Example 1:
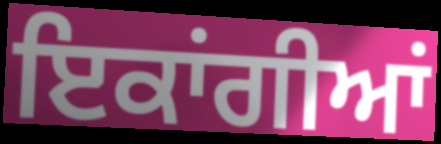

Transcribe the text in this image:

ਇਕਾਂਗੀਆਂ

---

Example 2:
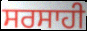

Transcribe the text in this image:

ਸਰਸਾਹੀ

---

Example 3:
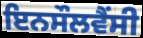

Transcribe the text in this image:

ਇਨਸੌਲਵੈਂਸੀ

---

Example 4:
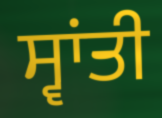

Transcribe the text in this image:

ਸ੍ਵਾਂਤੀ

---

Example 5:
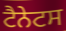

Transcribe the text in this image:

ਟੈਨੇਟਸ